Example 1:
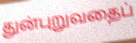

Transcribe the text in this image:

துன்புறுவதைப்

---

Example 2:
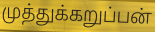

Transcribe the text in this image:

முத்துக்கறுப்பன்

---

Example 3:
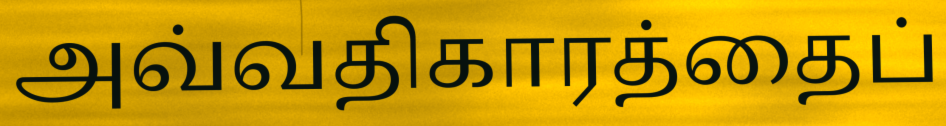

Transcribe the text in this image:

அவ்வதிகாரத்தைப்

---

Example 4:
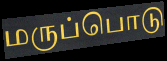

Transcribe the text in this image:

மருப்பொடு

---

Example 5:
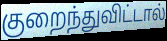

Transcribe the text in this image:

குறைந்துவிட்டால்